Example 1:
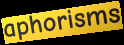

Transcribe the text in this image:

aphorisms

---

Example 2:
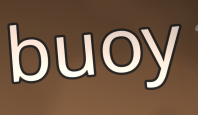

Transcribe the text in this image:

buoy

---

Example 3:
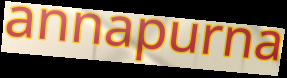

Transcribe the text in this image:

annapurna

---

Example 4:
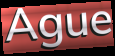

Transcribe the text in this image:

Ague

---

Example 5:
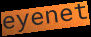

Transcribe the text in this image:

eyenet